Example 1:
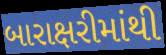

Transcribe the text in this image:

બારાક્ષરીમાંથી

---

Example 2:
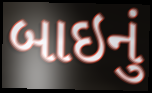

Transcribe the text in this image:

બાઇનું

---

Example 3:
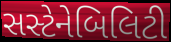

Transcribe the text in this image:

સસ્ટેનેબિલિટી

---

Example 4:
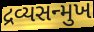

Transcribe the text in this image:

દ્રવ્યસન્મુખ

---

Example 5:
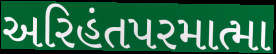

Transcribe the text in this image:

અરિહંતપરમાત્મા